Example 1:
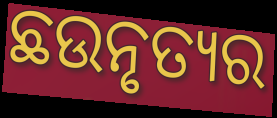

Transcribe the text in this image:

ଛଉନୃତ୍ୟର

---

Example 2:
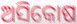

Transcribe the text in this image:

ଅସିକୋଷ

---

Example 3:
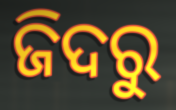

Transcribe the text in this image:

ଜିଦରୁ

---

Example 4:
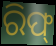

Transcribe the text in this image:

ରିଫ୍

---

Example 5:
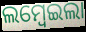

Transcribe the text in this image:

ଲମ୍ବେଇଲା